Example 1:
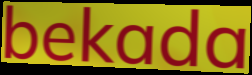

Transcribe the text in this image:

bekada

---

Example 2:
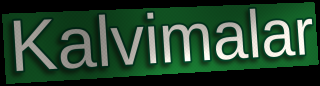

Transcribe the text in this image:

Kalvimalar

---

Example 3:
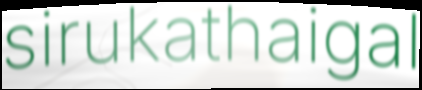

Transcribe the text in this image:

sirukathaigal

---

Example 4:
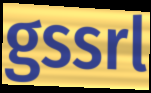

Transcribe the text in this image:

gssrl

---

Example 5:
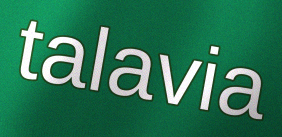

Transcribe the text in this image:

talavia